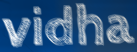
vidha